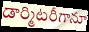
డార్మిటరీగానూ